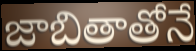
జాబితాతోనే